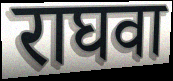
राघवा